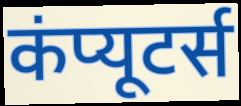
कंप्यूटर्स